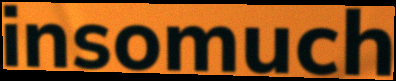
insomuch